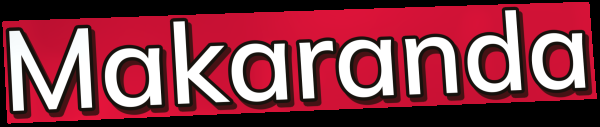
Makaranda